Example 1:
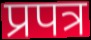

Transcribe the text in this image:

प्रपत्र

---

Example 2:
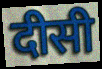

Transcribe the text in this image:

दीसी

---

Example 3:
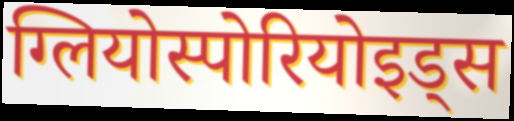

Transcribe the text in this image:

ग्लियोस्पोरियोइड्स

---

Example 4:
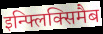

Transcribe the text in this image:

इन्फ्लिक्सिमैब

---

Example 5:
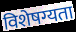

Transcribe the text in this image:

विशेषग्यता